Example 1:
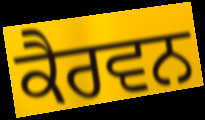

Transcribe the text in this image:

ਕੈਰਵਨ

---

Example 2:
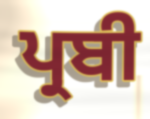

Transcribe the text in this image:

ਪ੍ਰਬੀ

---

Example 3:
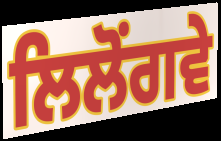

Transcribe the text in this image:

ਲਿਲੋਂਗਵੇ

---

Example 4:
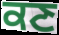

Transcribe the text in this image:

ਕਣ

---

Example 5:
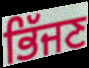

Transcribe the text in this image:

ਭਿੱਜਣ